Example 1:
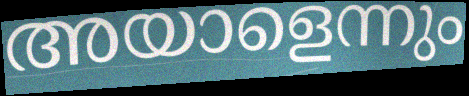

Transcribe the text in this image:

അയാളെന്നും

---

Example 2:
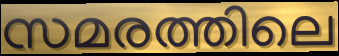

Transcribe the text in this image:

സമരത്തിലെ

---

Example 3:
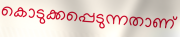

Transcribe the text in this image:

കൊടുക്കപ്പെടുന്നതാണ്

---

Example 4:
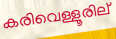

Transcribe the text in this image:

കരിവെള്ളൂരില്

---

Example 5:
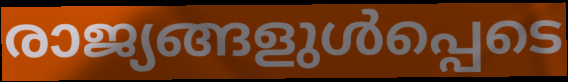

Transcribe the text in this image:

രാജ്യങ്ങളുൾപ്പെടെ